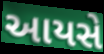
આયસે